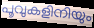
പൂവുകളിനിയും